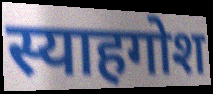
स्याहगोश